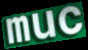
muc